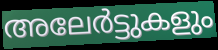
അലേർട്ടുകളും